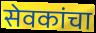
सेवकांचा